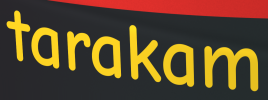
tarakam